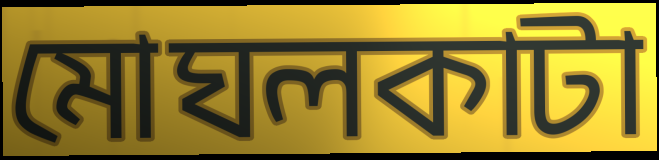
মোঘলকাটা